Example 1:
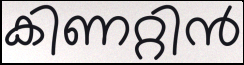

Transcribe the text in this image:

കിണറ്റിൻ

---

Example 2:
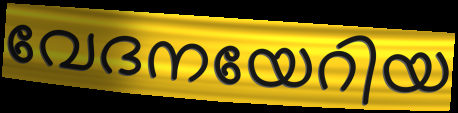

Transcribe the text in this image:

വേദനയേറിയ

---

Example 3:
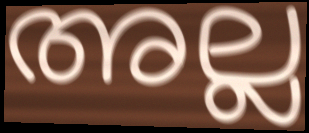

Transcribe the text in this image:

അല്ല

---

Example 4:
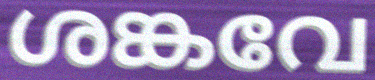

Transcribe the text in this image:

ശങ്കവേ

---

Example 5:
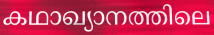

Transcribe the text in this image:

കഥാഖ്യാനത്തിലെ